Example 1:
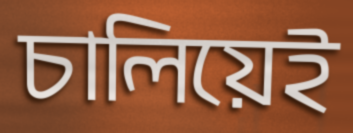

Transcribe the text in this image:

চালিয়েই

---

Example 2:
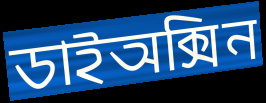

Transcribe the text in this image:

ডাইঅক্সিন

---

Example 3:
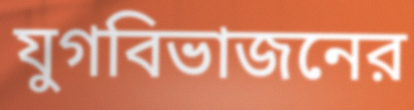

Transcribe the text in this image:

যুগবিভাজনের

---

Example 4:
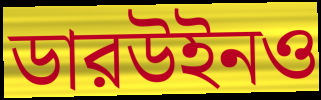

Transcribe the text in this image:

ডারউইনও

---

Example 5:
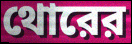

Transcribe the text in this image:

থোরের